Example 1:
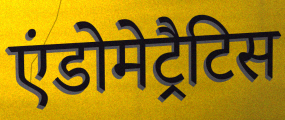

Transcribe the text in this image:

एंडोमेट्रैटिस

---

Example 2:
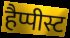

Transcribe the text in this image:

हैप्पीस्ट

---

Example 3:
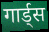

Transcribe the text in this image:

गार्ड्स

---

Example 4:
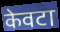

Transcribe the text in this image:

केवटा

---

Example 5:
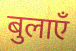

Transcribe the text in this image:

बुलाएँ